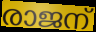
രാജന്